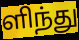
ளிந்து